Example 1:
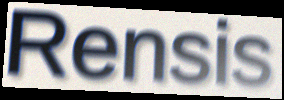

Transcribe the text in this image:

Rensis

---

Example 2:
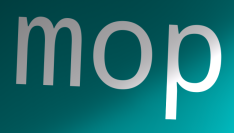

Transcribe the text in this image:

mop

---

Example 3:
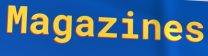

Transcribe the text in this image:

Magazines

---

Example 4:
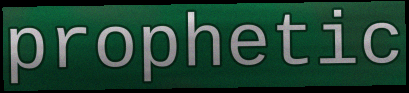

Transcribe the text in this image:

prophetic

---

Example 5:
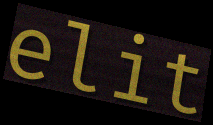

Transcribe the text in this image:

elit